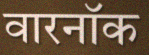
वारनॉक